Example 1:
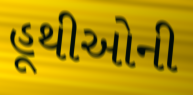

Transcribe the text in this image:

હૂથીઓની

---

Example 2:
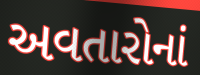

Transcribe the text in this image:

અવતારોનાં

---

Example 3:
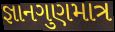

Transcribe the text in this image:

જ્ઞાનગુણમાત્ર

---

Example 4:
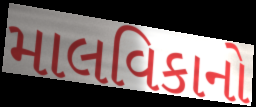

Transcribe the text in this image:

માલવિકાનો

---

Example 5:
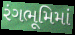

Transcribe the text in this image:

રંગભૂમિમાં